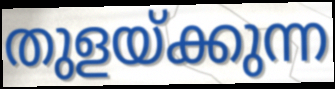
തുളയ്ക്കുന്ന